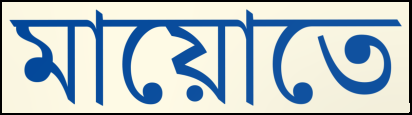
মায়োতে